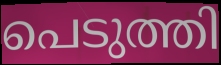
പെടുത്തി